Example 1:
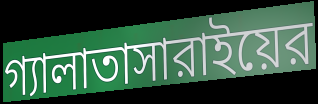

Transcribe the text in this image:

গ্যালাতাসারাইয়ের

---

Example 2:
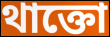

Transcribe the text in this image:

থাক্তো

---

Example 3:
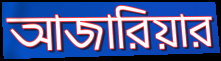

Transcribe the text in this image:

আজারিয়ার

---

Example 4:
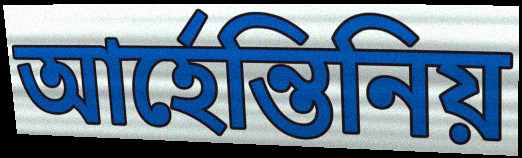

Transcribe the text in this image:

আর্হেন্তিনিয়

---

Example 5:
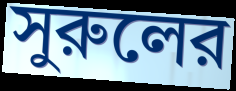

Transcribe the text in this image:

সুরুলের